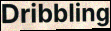
Dribbling